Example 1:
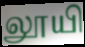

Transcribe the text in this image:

லூயி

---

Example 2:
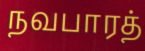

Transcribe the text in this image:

நவபாரத்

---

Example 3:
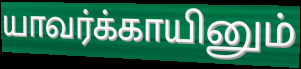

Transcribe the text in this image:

யாவர்க்காயினும்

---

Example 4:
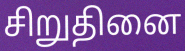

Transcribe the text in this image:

சிறுதினை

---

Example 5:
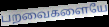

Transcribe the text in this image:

பறவைகளையே